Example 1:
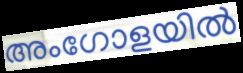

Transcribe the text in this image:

അംഗോളയിൽ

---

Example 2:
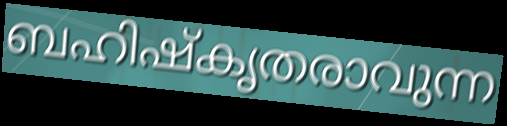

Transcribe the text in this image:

ബഹിഷ്കൃതരാവുന്ന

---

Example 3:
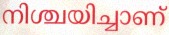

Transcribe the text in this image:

നിശ്ചയിച്ചാണ്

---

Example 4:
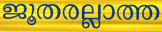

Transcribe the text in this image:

ജൂതരല്ലാത്ത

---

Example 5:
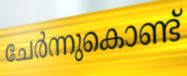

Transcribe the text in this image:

ചേർന്നുകൊണ്ട്